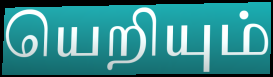
யெறியும்